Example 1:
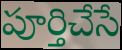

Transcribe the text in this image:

పూర్తిచేసే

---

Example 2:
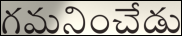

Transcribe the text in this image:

గమనించేడు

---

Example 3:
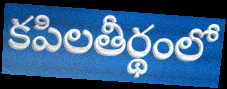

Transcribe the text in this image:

కపిలతీర్థంలో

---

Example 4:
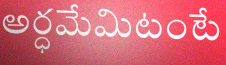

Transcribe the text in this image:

అర్ధమేమిటంటే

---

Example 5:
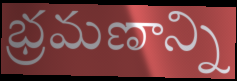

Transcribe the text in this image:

భ్రమణాన్ని